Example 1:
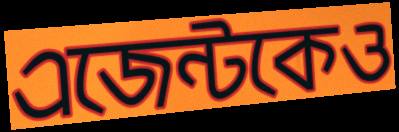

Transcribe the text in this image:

এজেন্টকেও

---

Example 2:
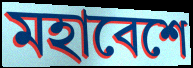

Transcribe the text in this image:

মহাবেশে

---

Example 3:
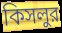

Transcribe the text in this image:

কিসলুর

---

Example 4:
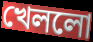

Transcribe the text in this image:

খেললো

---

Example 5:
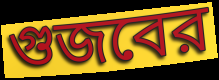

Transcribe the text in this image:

গুজবের